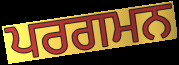
ਪਰਗਮਨ